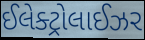
ઈલેક્ટ્રોલાઈઝર